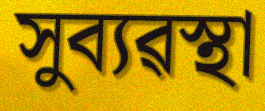
সুব্যৱস্থা